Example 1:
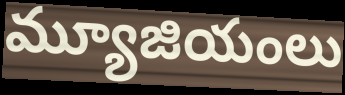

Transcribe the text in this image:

మ్యూజియంలు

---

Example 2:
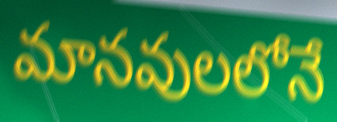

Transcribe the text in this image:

మానవులలోనే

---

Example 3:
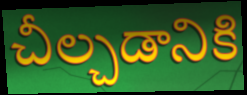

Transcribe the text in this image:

చీల్చడానికి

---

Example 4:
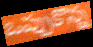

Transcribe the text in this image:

ఒప్పుకొన్న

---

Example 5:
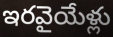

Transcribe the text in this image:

ఇరవైయేళ్లు